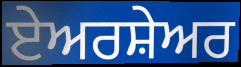
ਏਅਰਸ਼ੇਅਰ